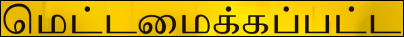
மெட்டமைக்கப்பட்ட